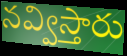
నవ్విస్తారు